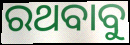
ରଥବାବୁ